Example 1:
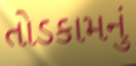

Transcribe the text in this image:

તોડકામનું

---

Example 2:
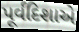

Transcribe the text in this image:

પૂર્વદિશાએ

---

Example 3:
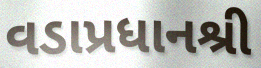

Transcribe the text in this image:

વડાપ્રધાનશ્રી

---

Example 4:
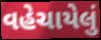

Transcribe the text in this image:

વહેચાયેલું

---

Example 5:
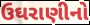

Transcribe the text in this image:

ઉઘરાણીનો